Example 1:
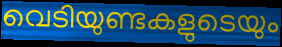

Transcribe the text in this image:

വെടിയുണ്ടകളുടെയും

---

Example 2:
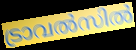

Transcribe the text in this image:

ട്രാവൽസിൽ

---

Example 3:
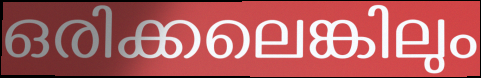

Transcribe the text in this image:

ഒരിക്കലെങ്കിലും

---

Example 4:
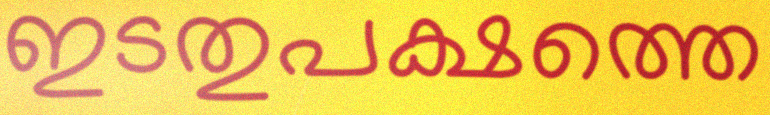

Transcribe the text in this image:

ഇടതുപക്ഷത്തെ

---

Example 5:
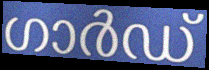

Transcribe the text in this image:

ഗാർഡ്